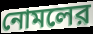
নোমলের